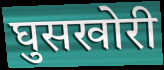
घुसखोरी